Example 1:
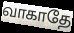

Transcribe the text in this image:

வாகாதே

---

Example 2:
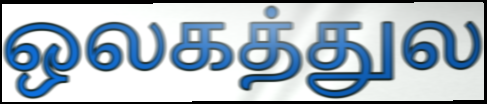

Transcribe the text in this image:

ஒலகத்துல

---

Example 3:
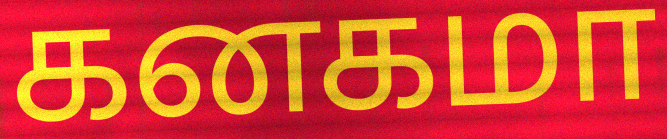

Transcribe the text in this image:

கனகமா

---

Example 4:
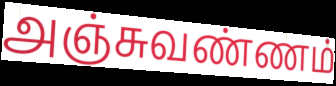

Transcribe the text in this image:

அஞ்சுவண்ணம்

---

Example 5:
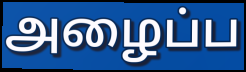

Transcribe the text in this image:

அழைப்ப